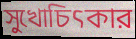
সুখোচিৎকার